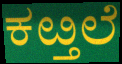
ಕೞ್ತಲೆ